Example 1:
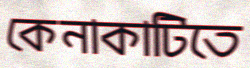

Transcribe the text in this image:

কেনাকাটিতে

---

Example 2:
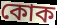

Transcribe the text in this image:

কোক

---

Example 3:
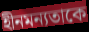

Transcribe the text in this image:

হীনমন্যতাকে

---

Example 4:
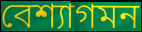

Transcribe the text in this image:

বেশ্যাগমন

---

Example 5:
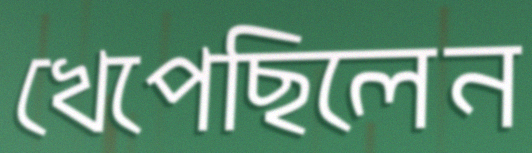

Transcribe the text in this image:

খেপেছিলেন